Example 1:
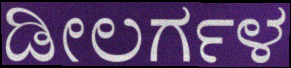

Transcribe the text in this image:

ಡೀಲರ್ಗಳ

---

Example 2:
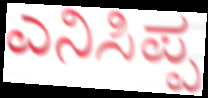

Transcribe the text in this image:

ಎನಿಸಿಪ್ಪ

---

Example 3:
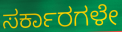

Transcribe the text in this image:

ಸರ್ಕಾರಗಳೇ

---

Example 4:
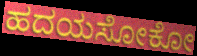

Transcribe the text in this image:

ಹದಯಸೋಕೋ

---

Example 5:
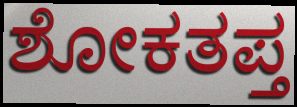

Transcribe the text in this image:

ಶೋಕತಪ್ತ